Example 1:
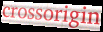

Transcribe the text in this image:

crossorigin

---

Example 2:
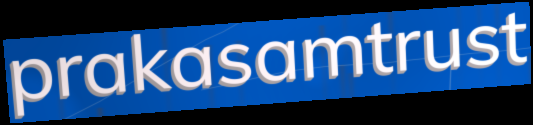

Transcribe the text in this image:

prakasamtrust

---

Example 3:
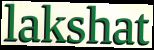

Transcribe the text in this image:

lakshat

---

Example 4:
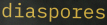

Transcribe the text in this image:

diaspores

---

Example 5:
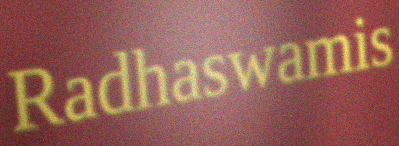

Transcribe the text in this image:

Radhaswamis